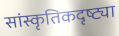
सांस्कृतिकदृष्ट्या